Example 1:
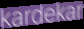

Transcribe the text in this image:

kardekar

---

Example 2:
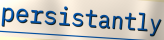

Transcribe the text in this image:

persistantly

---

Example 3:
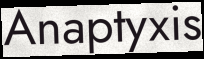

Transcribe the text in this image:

Anaptyxis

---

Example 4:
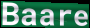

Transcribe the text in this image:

Baare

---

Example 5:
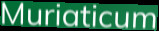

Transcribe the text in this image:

Muriaticum